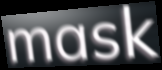
mask